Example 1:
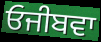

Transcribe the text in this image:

ਓਜੀਬਵਾ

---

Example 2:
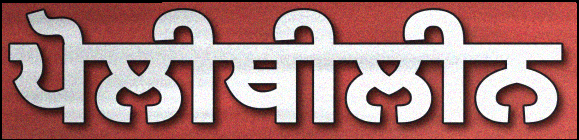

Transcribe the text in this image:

ਪੋਲੀਥੀਲੀਨ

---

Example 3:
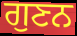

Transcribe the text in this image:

ਗੁਣਨ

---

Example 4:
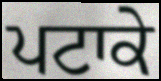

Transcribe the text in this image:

ਪਟਾਕੇ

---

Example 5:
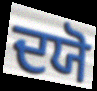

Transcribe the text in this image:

ਦਯੋ